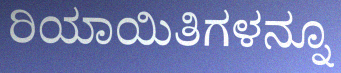
ರಿಯಾಯಿತಿಗಳನ್ನೂ